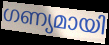
ഗണ്യമായി